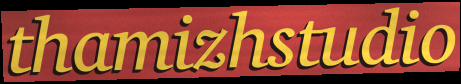
thamizhstudio